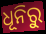
ଧୂନିରୁ